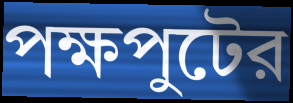
পক্ষপুটের